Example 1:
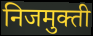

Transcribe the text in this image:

निजमुक्ती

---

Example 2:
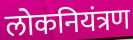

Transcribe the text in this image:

लोकनियंत्रण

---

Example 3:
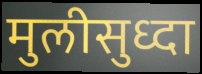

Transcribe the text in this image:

मुलीसुध्दा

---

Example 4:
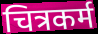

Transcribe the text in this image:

चित्रकर्म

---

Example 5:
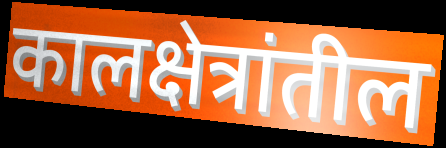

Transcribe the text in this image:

कालक्षेत्रांतील